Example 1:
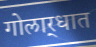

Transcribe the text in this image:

गोलार्धात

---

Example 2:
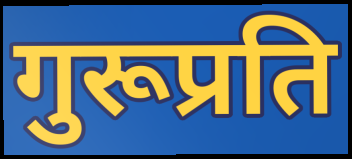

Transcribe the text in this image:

गुरूप्रति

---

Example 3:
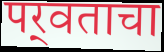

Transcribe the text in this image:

पर्वताचा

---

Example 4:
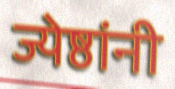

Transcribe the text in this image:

ज्येष्ठांनी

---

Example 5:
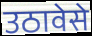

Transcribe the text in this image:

उठावेसे